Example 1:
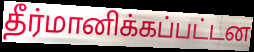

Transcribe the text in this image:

தீர்மானிக்கப்பட்டன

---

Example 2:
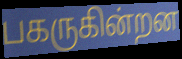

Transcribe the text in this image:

பகருகின்றன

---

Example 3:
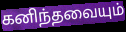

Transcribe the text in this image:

கனிந்தவையும்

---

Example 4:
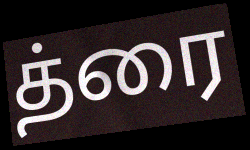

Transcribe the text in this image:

த்ரை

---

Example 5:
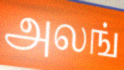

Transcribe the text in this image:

அலங்